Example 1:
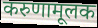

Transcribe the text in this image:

करुणामूलक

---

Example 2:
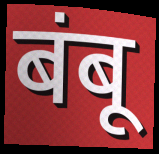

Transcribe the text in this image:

बंबू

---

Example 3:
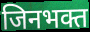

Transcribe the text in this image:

जिनभक्त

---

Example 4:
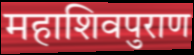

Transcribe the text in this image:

महाशिवपुराण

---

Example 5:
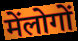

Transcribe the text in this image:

मेंलोगों